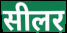
सीलर